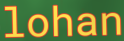
lohan